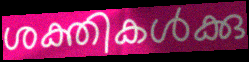
ശക്തികൾക്കു